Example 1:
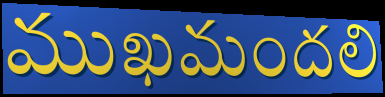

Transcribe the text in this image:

ముఖమందలి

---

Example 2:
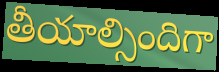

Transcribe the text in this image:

తీయాల్సిందిగా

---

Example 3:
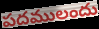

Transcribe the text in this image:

పదములందు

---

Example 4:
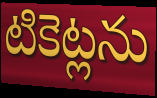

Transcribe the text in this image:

టికెట్లను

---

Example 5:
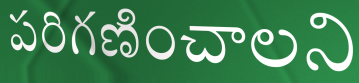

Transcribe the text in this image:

పరిగణించాలని